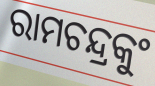
ରାମଚନ୍ଦ୍ରକୁଂ